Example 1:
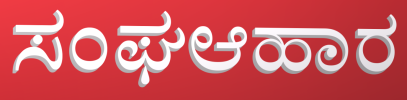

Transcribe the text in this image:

ಸಂಘಆಹಾರ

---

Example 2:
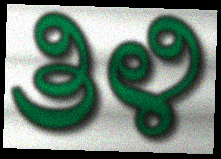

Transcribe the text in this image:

ತಿಳಿ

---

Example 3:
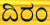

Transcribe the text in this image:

ದಿರಂ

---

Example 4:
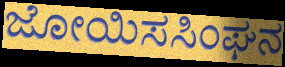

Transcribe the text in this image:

ಜೋಯಿಸಸಿಂಘನ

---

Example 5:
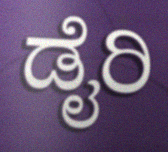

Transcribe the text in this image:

ಡೈರಿ